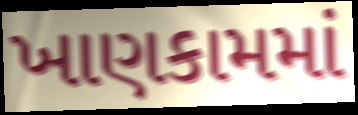
ખાણકામમાં